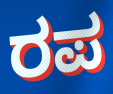
ರಪ